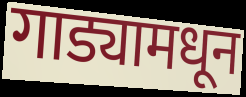
गाड्यामधून